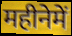
महीनेमें